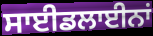
ਸਾਈਡਲਾਈਨਾਂ